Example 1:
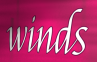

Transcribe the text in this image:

winds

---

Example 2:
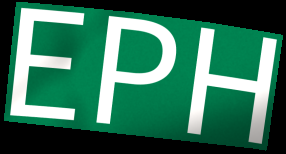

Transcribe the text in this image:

EPH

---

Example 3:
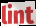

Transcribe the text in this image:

lint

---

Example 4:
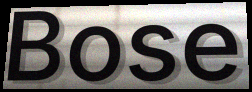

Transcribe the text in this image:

Bose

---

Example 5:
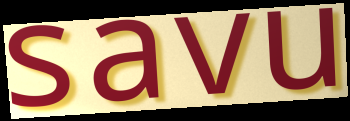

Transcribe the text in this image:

savu